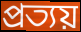
প্রত্যয়